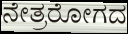
ನೇತ್ರರೋಗದ